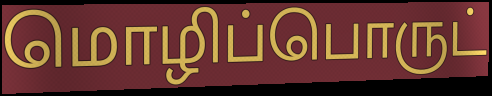
மொழிப்பொருட்